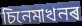
চিনেমাখনৰ